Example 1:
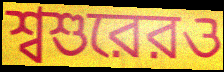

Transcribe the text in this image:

শ্বশুরেরও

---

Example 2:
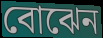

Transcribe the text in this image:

বোঝেন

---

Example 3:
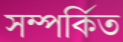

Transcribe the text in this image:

সম্পর্কিত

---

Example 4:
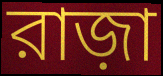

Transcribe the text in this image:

রাজ়া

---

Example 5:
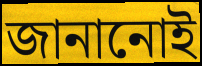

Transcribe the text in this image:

জানানোই